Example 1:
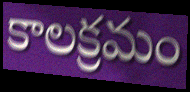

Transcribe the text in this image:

కాలక్రమం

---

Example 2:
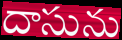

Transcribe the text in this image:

దాసును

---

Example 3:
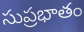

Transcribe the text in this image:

సుప్రభాతం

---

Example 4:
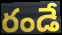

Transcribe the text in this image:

రండే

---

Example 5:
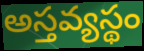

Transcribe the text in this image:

అస్తవ్యస్థం